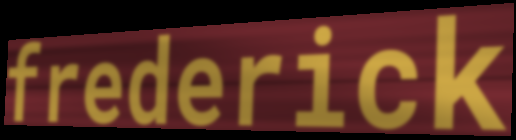
frederick